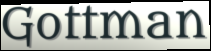
Gottman